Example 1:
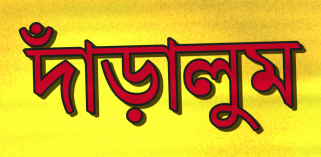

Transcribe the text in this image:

দাঁড়ালুম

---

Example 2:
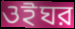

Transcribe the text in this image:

ওইঘর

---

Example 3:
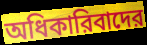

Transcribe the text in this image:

অধিকারিবাদের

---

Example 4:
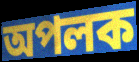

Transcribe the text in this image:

অপলক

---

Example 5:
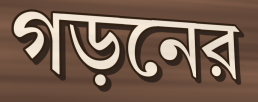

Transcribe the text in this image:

গড়নের